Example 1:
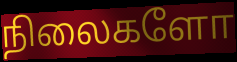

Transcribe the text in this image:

நிலைகளோ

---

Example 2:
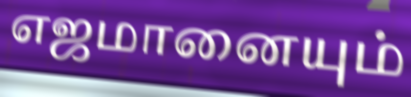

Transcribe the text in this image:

எஜமானையும்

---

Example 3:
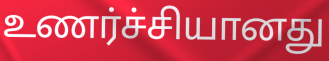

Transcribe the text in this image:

உணர்ச்சியானது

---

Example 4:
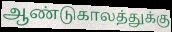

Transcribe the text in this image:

ஆண்டுகாலத்துக்கு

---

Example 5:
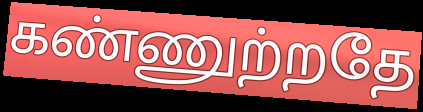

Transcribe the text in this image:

கண்ணுற்றதே